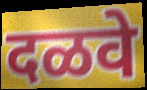
दळवे